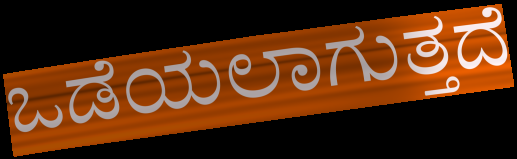
ಒಡೆಯಲಾಗುತ್ತದೆ